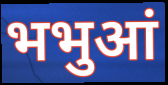
भभुआं